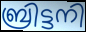
ബ്രിട്ടനി